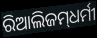
ରିଆଲିଜମ୍‌ଧର୍ମୀ